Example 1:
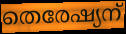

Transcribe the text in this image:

തെരേഷ്യന്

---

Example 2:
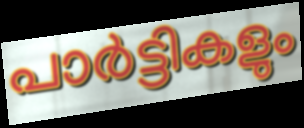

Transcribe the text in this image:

പാർട്ടികളും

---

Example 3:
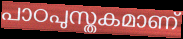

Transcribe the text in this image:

പാഠപുസ്തകമാണ്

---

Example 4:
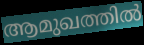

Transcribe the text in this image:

ആമുഖത്തിൽ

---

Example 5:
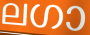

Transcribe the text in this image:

ലഗാ